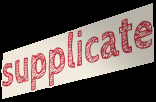
supplicate